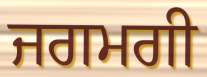
ਜਗਮਗੀ